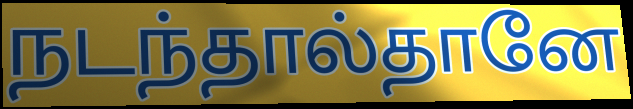
நடந்தால்தானே